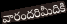
వారందరిమీదికి